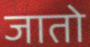
जातो